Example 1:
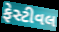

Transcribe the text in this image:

ફેસ્ટીવલ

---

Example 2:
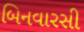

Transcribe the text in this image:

બિનવારસી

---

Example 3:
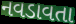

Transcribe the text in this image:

નવડાવતા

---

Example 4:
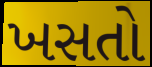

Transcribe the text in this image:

ખસતો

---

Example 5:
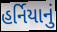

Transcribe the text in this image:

હર્નિયાનું